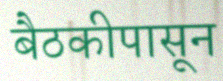
बैठकीपासून